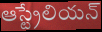
ఆస్ట్రేలియన్